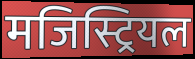
मजिस्ट्रियल